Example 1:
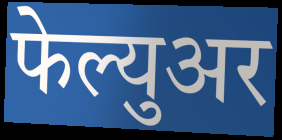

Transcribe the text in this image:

फेल्युअर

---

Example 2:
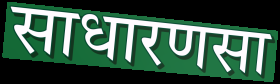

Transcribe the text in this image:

साधारणसा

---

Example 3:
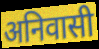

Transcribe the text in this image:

अनिवासी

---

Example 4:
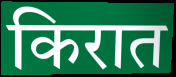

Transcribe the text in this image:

किरात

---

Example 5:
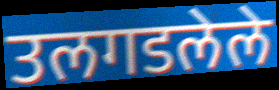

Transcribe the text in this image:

उलगडलेले